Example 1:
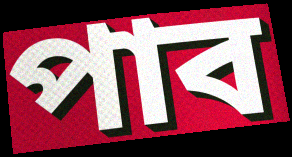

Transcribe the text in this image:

পাব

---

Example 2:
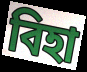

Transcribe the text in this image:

বিহা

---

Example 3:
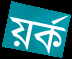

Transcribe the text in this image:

য়ৰ্ক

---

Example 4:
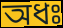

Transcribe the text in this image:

অধঃ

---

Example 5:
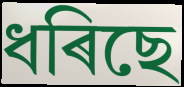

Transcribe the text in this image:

ধৰিছে